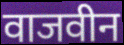
वाजवीन